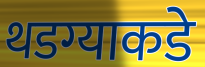
थडग्याकडे